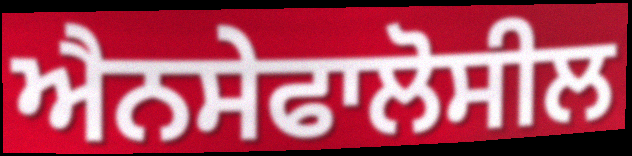
ਐਨਸੇਫਾਲੋਸੀਲ